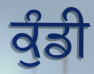
ਕੁੰਡੀ